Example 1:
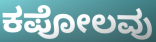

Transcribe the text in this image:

ಕಪೋಲವು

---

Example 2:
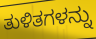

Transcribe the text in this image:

ತುಳಿತಗಳನ್ನು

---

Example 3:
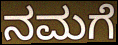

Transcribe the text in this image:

ನಮಗೆ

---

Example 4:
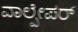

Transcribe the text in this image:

ವಾಲ್ಪೇಪರ್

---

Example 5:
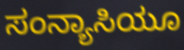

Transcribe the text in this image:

ಸಂನ್ಯಾಸಿಯೂ